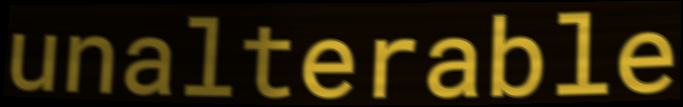
unalterable